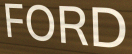
FORD